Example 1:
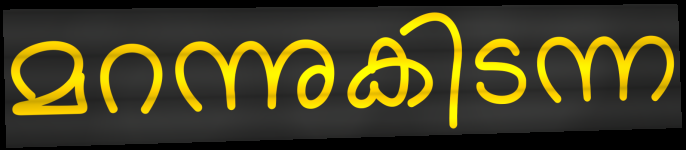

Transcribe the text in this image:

മറന്നുകിടന്ന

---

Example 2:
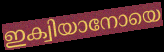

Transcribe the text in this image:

ഇക്വിയാനോയെ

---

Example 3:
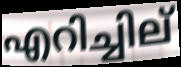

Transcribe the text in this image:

എറിച്ചില്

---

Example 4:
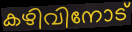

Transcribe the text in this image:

കഴിവിനോട്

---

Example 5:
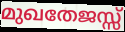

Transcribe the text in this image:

മുഖതേജസ്സ്